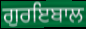
ਗੁਰਇਬਾਲ